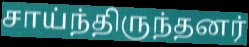
சாய்ந்திருந்தனர்